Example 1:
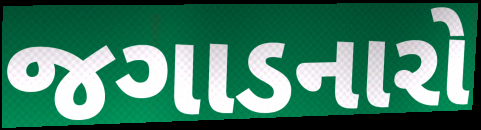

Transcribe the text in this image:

જગાડનારો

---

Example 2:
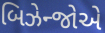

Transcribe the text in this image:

બિઝેન્જોએ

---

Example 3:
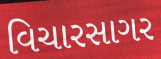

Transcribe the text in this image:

વિચારસાગર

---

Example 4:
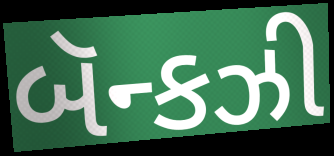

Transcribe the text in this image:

બૅન્કઝી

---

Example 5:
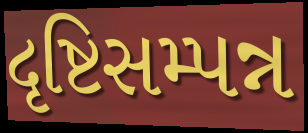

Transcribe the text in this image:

દૃષ્ટિસમ્પન્ન